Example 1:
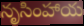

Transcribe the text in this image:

నృసింహాయ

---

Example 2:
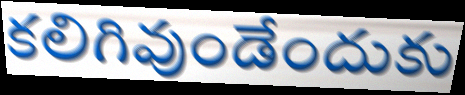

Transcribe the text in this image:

కలిగివుండేందుకు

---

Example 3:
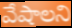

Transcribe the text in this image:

వేషాలని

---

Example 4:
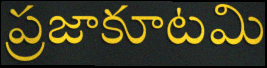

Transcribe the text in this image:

ప్రజాకూటమి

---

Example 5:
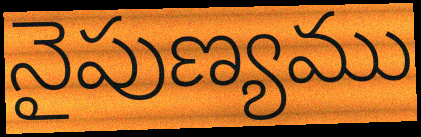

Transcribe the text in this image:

నైపుణ్యము